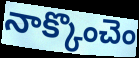
నాక్కొంచెం